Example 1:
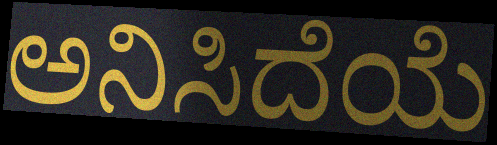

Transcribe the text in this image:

ಅನಿಸಿದೆಯೆ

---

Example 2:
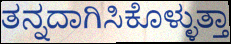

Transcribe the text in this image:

ತನ್ನದಾಗಿಸಿಕೊಳ್ಳುತ್ತಾ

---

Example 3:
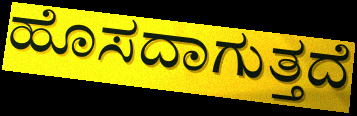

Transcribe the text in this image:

ಹೊಸದಾಗುತ್ತದೆ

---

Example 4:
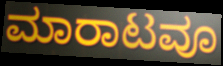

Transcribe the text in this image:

ಮಾರಾಟವೂ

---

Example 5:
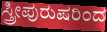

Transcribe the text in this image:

ಸ್ತ್ರೀಪುರುಷರಿಂದ